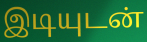
இடியுடன்